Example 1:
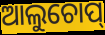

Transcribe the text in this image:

ଆଲୁଚୋପ୍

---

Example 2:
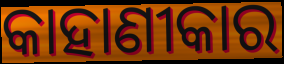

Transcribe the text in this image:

କାହାଣୀକାର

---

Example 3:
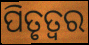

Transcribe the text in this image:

ପିତୃତ୍ୱର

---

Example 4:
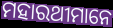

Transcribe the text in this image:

ମହାରଥୀମାନେ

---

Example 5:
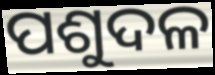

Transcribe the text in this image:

ପଶୁଦଳ